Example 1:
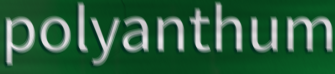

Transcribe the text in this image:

polyanthum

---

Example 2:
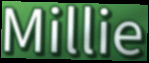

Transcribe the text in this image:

Millie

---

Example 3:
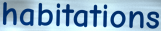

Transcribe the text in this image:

habitations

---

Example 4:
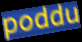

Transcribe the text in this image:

poddu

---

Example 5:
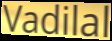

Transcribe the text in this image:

Vadilal